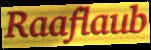
Raaflaub